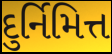
દુર્નિમિત્ત